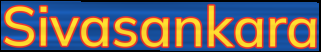
Sivasankara